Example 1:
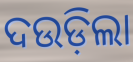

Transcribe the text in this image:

ଦଉଡ଼ିଲା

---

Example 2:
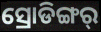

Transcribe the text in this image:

ସ୍ରୋଡିଙ୍ଗର୍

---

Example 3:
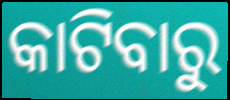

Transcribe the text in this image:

କାଟିବାରୁ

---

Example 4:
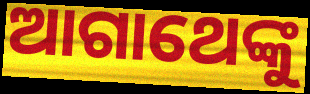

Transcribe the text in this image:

ଆଗାଥେଙ୍କୁ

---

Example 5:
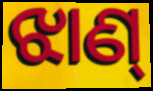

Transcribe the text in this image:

ଝାଣ୍